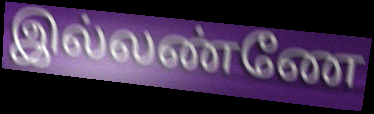
இல்லண்ணே